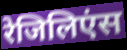
रेजिलिएंस